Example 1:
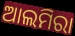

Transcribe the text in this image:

ଆଲମିରା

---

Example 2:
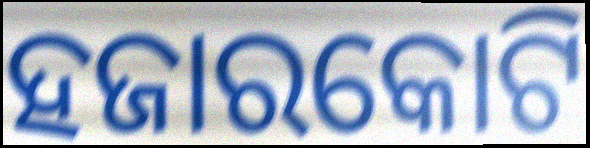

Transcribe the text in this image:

ହଜାରକୋଟି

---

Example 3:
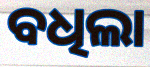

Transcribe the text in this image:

ବଧିଲା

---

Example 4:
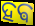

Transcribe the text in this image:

ହଵ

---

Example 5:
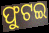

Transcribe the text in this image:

ଫୁଟଇ